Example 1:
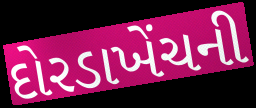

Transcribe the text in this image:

દોરડાખેંચની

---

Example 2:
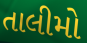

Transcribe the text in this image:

તાલીમો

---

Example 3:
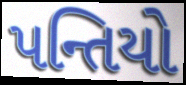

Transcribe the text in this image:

પન્તિયો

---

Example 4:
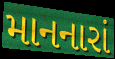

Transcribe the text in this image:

માનનારાં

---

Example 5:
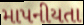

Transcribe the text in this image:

માપનીયતા